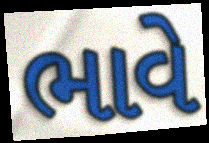
ભાવે